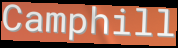
Camphill